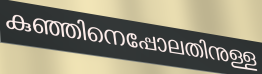
കുഞ്ഞിനെപ്പോലതിനുള്ള